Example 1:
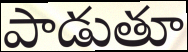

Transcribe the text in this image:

పాడుతూ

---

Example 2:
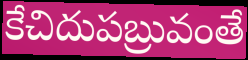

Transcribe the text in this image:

కేచిదుపబ్రువంతే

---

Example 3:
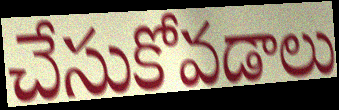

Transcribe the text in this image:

చేసుకోవడాలు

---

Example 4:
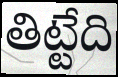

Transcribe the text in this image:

తిట్టేది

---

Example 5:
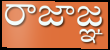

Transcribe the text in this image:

రాజాజ్ఞ